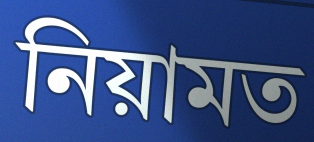
নিয়ামত